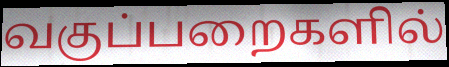
வகுப்பறைகளில்